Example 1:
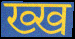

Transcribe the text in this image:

ख्ख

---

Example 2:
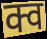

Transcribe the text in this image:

क्व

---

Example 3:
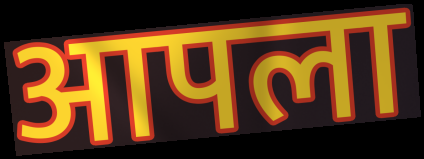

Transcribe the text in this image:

आपला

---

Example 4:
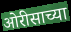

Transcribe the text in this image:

ओरीसाच्या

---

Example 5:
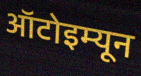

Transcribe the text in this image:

ऑटोइम्यून